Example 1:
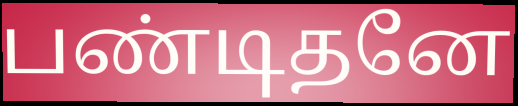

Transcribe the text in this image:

பண்டிதனே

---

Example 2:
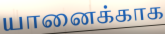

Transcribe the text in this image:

யானைக்காக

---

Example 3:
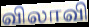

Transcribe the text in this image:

விலாவி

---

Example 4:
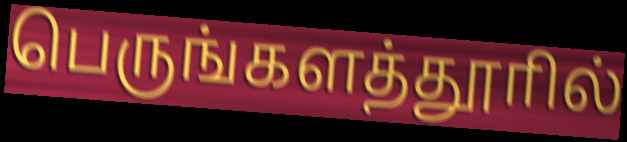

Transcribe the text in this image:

பெருங்களத்தூரில்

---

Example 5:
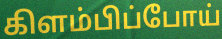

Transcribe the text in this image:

கிளம்பிப்போய்